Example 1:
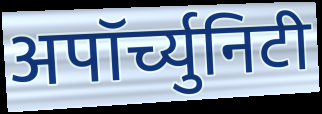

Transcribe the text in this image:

अपॉर्च्युनिटी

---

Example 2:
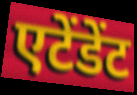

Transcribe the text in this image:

एटेंडेंट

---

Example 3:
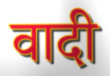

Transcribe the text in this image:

वादी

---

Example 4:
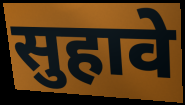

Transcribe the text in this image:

सुहावे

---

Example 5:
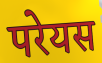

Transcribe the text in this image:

परेयस